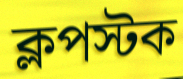
ক্লপস্টক